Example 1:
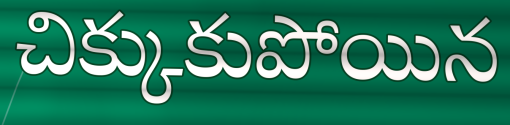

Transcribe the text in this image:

చిక్కుకుపోయిన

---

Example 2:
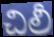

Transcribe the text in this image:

చిలీ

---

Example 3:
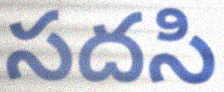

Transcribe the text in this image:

సదసి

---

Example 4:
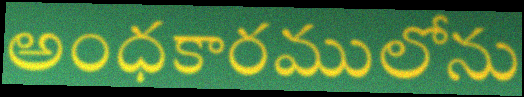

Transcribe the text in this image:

అంధకారములోను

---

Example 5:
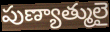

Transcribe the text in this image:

పుణ్యాత్ములై